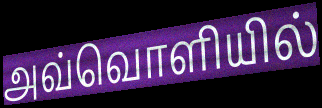
அவ்வொளியில்